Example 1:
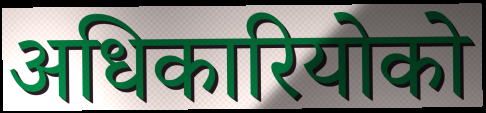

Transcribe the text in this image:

अधिकारियोको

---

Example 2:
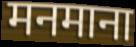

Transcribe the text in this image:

मनमाना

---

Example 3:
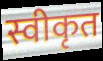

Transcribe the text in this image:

स्‍वीकृत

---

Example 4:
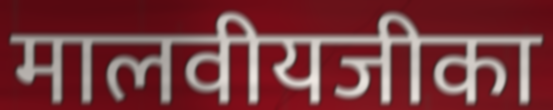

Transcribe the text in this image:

मालवीयजीका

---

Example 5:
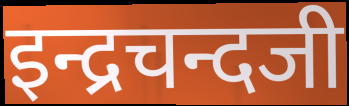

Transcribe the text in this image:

इन्द्रचन्दजी